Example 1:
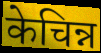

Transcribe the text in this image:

केचिन्न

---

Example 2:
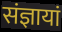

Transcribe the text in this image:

संज्ञायां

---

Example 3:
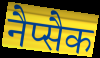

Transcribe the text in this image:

नैप्सैक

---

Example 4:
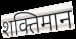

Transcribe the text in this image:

शक्तिमान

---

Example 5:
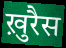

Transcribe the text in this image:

ख़ुरैस